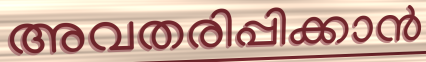
അവതരിപ്പിക്കാൻ